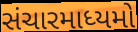
સંચારમાધ્યમો